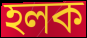
হলক